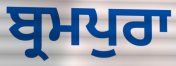
ਬ੍ਰਮਪੁਰਾ